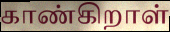
காண்கிறாள்